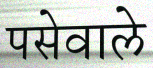
पसेवाले